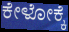
ಕೇಳೋಕ್ಕೆ